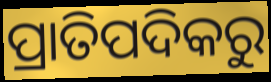
ପ୍ରାତିପଦିକରୁ